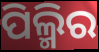
ପିଲ୍ମିର